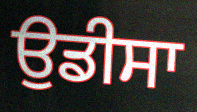
ਉਡੀਸਾ